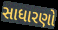
સાધારણો